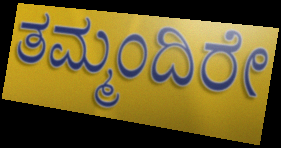
ತಮ್ಮಂದಿರೇ